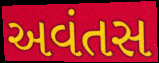
અવંતસ